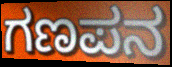
ಗಣಪನ